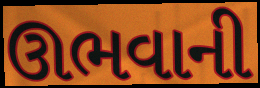
ઊભવાની